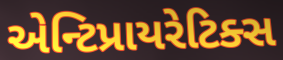
એન્ટિપ્રાયરેટિક્સ